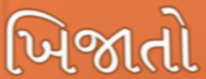
ખિજાતો